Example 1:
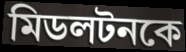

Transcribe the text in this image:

মিডলটনকে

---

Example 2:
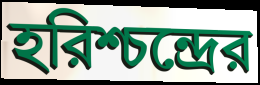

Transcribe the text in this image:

হরিশ্চন্দ্রের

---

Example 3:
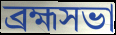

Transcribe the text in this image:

ব্রহ্মসভা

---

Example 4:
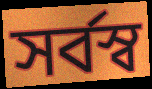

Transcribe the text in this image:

সর্বস্ব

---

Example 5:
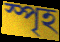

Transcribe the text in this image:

স্পৃহ